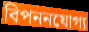
বিপননযোগ্য